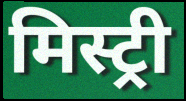
मिस्ट्री